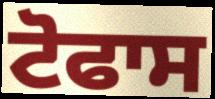
ਟੋਫਾਸ